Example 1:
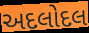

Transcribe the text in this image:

અદલોદલ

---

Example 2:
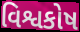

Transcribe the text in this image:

વિશ્વકોષ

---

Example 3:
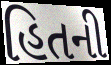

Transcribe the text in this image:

હિતની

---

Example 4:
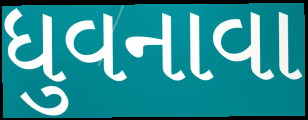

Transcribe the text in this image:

ધુવનાવા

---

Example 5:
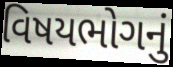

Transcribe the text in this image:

વિષયભોગનું